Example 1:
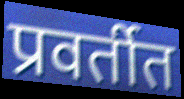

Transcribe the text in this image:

प्रवर्तीत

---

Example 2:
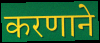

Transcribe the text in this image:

करणाने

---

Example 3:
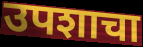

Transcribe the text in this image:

उपशाचा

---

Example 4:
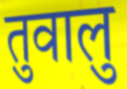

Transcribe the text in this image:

तुवालु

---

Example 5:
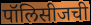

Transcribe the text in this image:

पॉलिसीजची